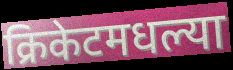
क्रिकेटमधल्या